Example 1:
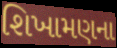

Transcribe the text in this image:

શિખામણના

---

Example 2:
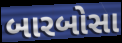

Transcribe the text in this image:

બારબોસા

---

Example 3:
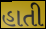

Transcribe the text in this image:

હાતી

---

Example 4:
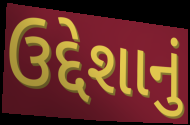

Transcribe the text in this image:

ઉદ્દેશાનું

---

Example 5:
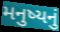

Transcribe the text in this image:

મનુષ્યનું